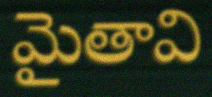
మైతావి